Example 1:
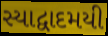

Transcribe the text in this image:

સ્યાદ્વાદમયી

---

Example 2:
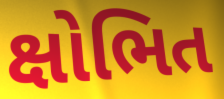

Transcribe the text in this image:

ક્ષોભિત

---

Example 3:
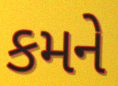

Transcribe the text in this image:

કમને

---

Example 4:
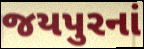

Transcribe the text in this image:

જયપુરનાં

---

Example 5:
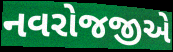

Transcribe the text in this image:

નવરોજજીએ